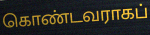
கொண்டவராகப்